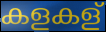
കളകള്